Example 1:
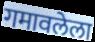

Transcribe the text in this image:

गमावलेला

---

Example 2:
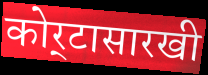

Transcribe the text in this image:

कोर्टासारखी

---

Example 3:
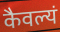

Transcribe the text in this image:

कैवल्यं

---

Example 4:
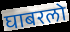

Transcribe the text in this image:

घाबरलो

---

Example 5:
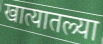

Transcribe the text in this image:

खात्यातल्या